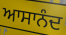
ਆਸਾਨੰਦ